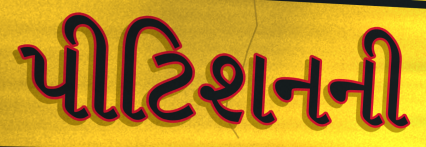
પીટિશનની